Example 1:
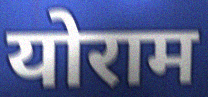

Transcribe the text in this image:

योराम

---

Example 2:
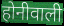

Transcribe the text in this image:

होनीवाली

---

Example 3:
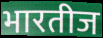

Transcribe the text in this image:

भारतीज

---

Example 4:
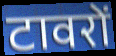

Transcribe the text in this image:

टावरों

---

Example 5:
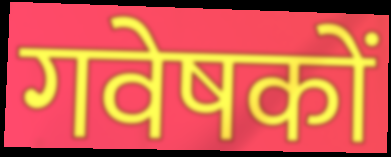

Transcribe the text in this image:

गवेषकों